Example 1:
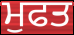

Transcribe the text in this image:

ਮੁਫਤ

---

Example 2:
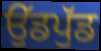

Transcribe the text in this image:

ਉੱਡਪੁੱਡ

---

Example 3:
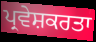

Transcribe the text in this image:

ਪ੍ਰਵੇਸ਼ਕਰਤਾ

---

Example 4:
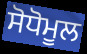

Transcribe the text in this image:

ਸੋਧੋਮੂਲ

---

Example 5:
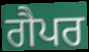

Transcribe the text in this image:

ਗੈਪਰ